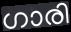
ഗാരി